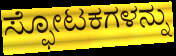
ಸ್ಫೋಟಕಗಳನ್ನು